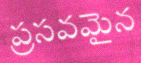
ప్రసవమైన